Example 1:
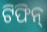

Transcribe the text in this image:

ଟିଫିନ୍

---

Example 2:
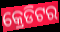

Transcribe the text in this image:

କ୍ରେଡିଟର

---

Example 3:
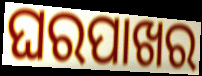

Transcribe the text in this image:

ଘରପାଖର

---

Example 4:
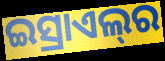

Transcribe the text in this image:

ଇସ୍ରାଏଲ୍‌ର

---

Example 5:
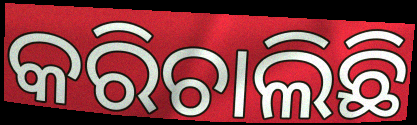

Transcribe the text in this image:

କରିଚାଲିଛି